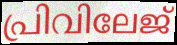
പ്രിവിലേജ്